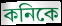
কনিকে